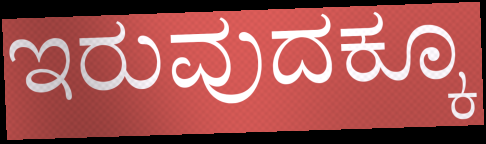
ಇರುವುದಕ್ಕೂ